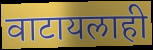
वाटायलाही